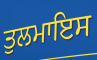
ਤੁਲਮਾਇਸ